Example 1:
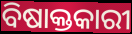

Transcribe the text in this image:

ବିଷାକ୍ତକାରୀ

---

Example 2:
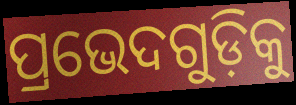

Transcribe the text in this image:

ପ୍ରଭେଦଗୁଡ଼ିକୁ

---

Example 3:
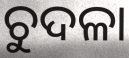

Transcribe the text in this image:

ଚୁଦଳା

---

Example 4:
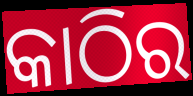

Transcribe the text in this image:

କାଠିର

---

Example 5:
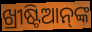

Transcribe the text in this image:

ଖ୍ରୀଷ୍ଟିଆନ୍‌ଙ୍କ